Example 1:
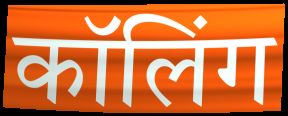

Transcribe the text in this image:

कॉलिंग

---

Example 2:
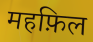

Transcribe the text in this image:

महफ़िल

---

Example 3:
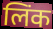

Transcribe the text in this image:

लिंक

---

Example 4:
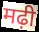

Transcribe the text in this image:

मढ़ी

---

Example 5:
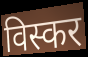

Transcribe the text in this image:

विस्कर